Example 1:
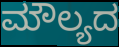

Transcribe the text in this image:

ಮೌಲ್ಯದ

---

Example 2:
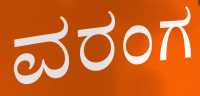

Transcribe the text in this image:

ವರಂಗ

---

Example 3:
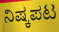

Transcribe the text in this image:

ನಿಷ್ಕಪಟ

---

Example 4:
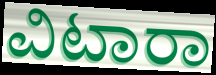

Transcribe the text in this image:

ವಿಟಾರಾ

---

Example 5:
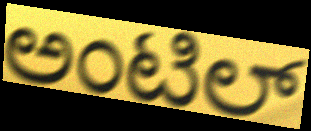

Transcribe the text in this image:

ಅಂಟಿಲ್